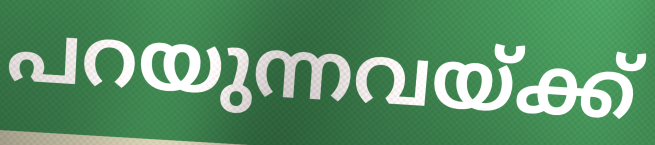
പറയുന്നവയ്ക്ക്